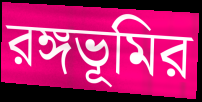
রঙ্গভূমির